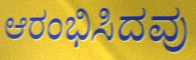
ಆರಂಭಿಸಿದವು